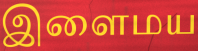
இளைமய